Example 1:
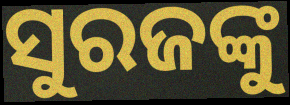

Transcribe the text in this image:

ସୁରଜଙ୍କୁ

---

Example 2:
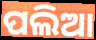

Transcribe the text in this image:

ପଲିଆ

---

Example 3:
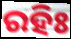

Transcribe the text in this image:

ରହିଃ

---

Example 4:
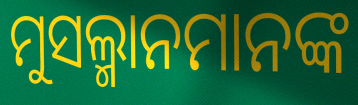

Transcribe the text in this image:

ମୁସଲ୍ମାନମାନଙ୍କ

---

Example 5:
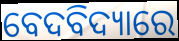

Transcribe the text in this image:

ବେଦବିଦ୍ୟାରେ